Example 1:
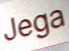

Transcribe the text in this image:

Jega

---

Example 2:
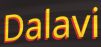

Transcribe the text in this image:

Dalavi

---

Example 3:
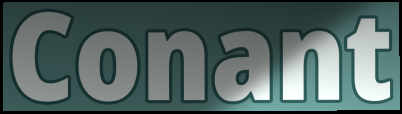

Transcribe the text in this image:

Conant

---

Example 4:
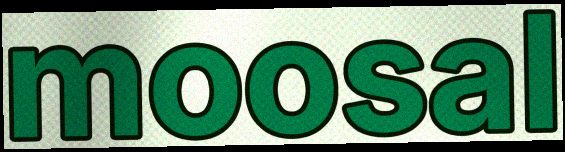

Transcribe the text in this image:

moosal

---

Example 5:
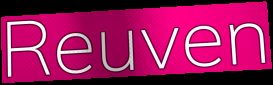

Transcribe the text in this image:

Reuven